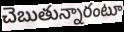
చెబుతున్నారంటూ